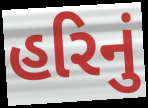
હરિનું